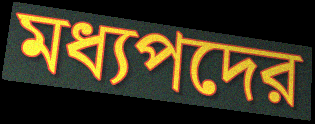
মধ্যপদের